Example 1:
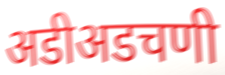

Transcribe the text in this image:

अडीअडचणी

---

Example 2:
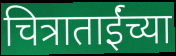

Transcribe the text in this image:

चित्राताईंच्या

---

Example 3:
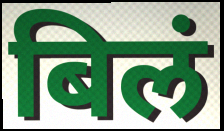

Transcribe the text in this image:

बिलं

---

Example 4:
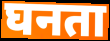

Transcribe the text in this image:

घनता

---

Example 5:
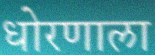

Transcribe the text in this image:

धोरणाला